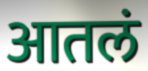
आतलं